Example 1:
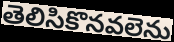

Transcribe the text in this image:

తెలిసికొనవలెను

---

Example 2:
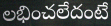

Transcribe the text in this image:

లభించలేదంటే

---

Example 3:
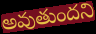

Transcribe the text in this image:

అవుతుందని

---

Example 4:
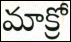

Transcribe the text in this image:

మాక్రో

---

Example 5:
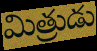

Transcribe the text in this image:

మిత్రుడు